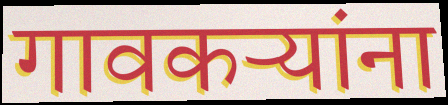
गावकऱ्यांना